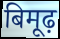
बिमूढ़